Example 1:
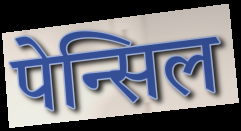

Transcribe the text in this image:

पेन्सिल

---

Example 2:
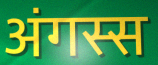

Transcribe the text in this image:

अंगस्स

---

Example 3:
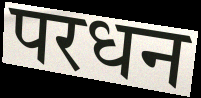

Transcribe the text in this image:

परधन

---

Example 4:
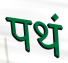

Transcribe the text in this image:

पथं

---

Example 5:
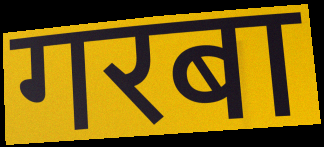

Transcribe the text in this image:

गरबा